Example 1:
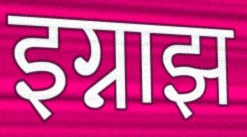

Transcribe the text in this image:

इग्नाझ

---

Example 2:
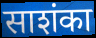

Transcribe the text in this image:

साशंका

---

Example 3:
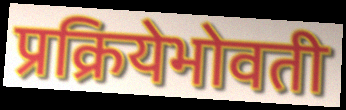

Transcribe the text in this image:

प्रक्रियेभोवती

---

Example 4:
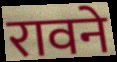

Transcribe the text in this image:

रावने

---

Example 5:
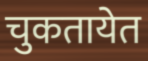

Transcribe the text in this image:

चुकतायेत